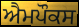
ਐਮਪੌਕਸ